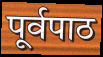
पूर्वपाठ